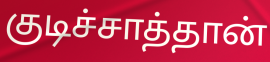
குடிச்சாத்தான்